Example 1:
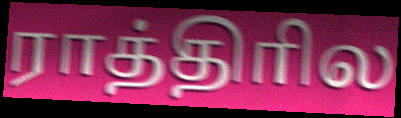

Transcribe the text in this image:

ராத்திரில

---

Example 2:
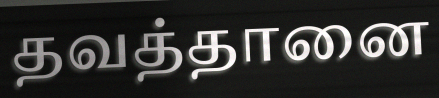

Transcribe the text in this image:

தவத்தானை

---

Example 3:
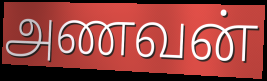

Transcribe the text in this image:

அணவன்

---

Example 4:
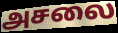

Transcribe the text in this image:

அசலை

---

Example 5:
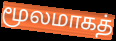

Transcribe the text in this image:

மூலமாகத்